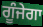
ਗੂੰਜੇਗਾ